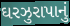
ઘરઝુરાપાનું